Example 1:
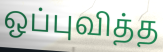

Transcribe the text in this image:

ஒப்புவித்த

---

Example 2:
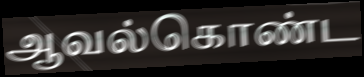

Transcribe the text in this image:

ஆவல்கொண்ட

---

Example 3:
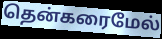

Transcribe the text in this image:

தென்கரைமேல்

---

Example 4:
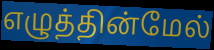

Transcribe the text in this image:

எழுத்தின்மேல்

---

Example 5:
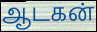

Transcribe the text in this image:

ஆடகன்